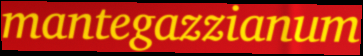
mantegazzianum